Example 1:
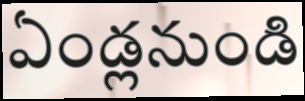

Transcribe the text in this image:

ఏండ్లనుండి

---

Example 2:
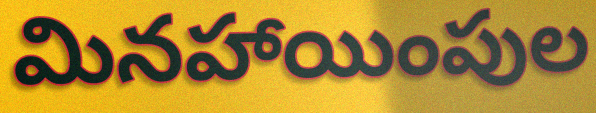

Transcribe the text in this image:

మినహాయింపుల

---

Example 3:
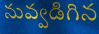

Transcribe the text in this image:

నువ్వడిగిన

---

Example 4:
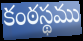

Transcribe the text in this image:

కంఠస్థము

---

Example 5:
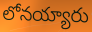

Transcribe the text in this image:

లోనయ్యారు